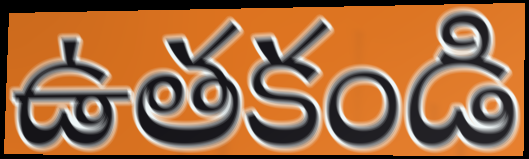
ఉతకండి